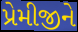
પ્રેમીજીને